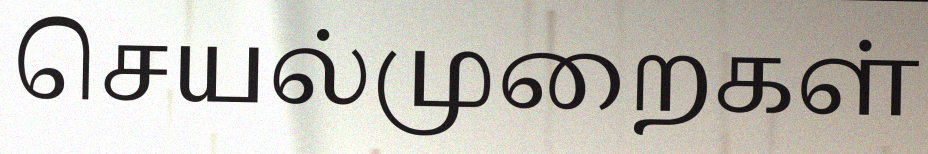
செயல்முறைகள்